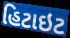
હિટાઇટ